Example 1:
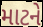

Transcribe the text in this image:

માટને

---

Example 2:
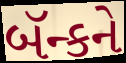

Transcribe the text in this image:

બૅન્કને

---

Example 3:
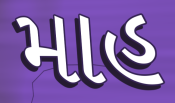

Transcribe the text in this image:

માહ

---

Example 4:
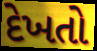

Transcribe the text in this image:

દેખતો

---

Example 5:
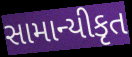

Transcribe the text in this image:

સામાન્યીકૃત